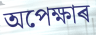
অপেক্ষাৰ